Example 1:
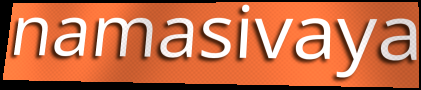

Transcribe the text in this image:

namasivaya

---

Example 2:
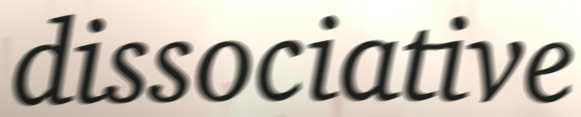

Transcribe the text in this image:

dissociative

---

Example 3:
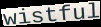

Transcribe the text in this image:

wistful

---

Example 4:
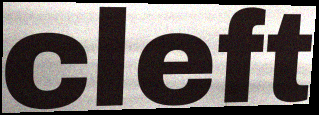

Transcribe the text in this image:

cleft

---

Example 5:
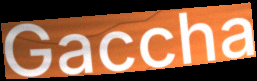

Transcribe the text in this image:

Gaccha